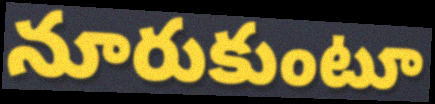
నూరుకుంటూ